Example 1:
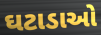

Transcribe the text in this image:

ઘટાડાઓ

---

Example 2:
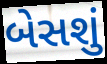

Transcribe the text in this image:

બેસશું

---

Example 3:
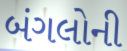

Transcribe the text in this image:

બંગલોની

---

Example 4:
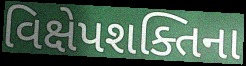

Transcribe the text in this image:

વિક્ષેપશક્તિના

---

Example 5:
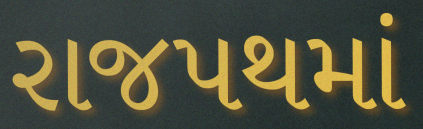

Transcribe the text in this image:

રાજપથમાં